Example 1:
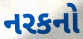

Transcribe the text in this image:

નરકનો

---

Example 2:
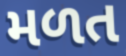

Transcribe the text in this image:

મળત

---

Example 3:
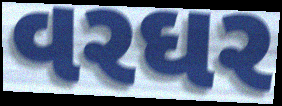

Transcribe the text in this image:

વરઘર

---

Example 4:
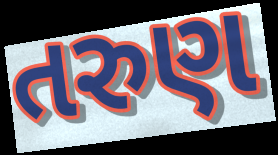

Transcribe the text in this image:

તરુણ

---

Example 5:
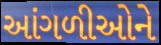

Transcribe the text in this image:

આંગળીઓને